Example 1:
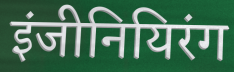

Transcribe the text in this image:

इंजीनियिरंग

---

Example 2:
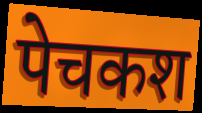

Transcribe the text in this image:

पेचकश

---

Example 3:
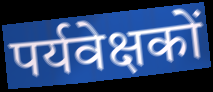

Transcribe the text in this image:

पर्यवेक्षकों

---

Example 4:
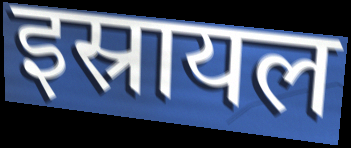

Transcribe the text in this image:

इस्रायल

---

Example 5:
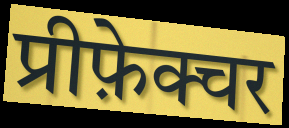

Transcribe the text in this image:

प्रीफ़ेक्चर